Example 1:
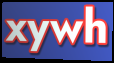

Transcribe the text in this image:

xywh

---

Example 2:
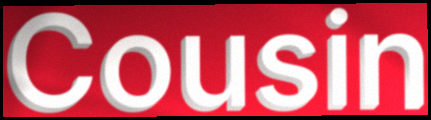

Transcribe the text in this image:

Cousin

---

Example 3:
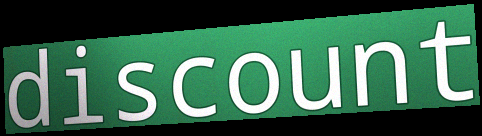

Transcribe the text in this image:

discount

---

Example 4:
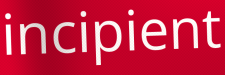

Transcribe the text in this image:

incipient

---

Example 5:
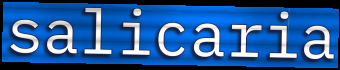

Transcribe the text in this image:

salicaria